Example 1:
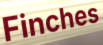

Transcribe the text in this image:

Finches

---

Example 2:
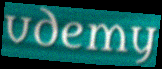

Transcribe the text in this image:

udemy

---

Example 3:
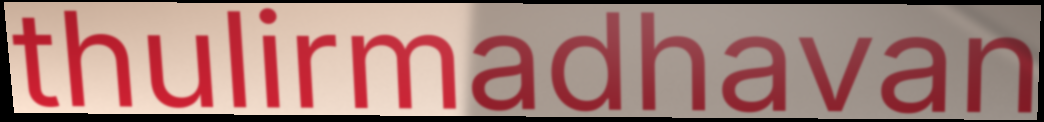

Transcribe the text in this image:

thulirmadhavan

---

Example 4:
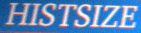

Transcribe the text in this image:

HISTSIZE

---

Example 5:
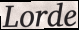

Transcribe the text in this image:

Lorde